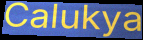
Calukya